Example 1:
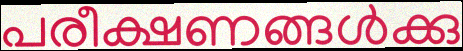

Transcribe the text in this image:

പരീക്ഷണങ്ങൾക്കു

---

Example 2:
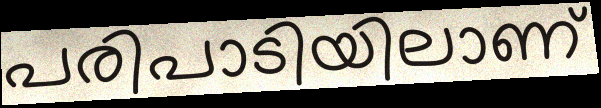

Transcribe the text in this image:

പരിപാടിയിലാണ്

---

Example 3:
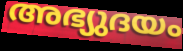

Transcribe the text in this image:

അഭ്യുദയം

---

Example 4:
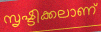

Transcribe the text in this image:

സൃഷ്ടിക്കലാണ്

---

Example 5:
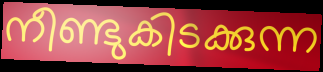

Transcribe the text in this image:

നീണ്ടുകിടക്കുന്ന